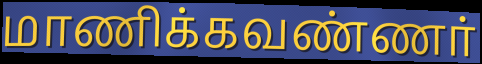
மாணிக்கவண்ணர்